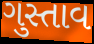
ગુસ્તાવ